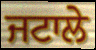
ਜਟਾਲੇ